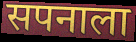
सपनाला